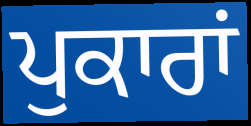
ਪੁਕਾਰਾਂ